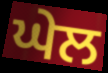
ਘੇਲ